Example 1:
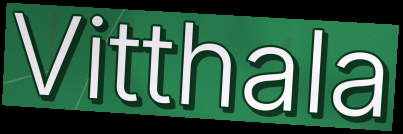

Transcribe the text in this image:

Vitthala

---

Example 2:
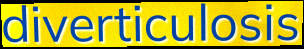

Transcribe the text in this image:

diverticulosis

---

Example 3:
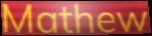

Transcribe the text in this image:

Mathew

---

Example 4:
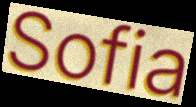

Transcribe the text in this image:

Sofia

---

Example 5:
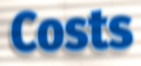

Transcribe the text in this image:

Costs